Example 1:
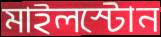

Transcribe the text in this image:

মাইলস্টোন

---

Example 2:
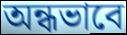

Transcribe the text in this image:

অন্ধভাবে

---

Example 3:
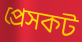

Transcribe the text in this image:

প্রেসকট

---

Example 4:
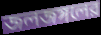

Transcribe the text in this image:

জলজঙ্গলের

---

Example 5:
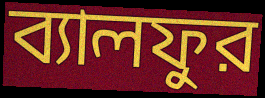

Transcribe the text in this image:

ব্যালফুর